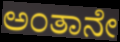
ಅಂತಾನೇ